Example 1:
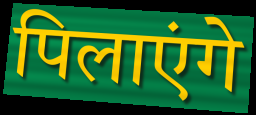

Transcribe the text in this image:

पिलाएंगे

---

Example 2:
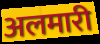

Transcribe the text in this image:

अलमारी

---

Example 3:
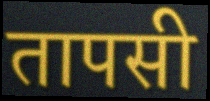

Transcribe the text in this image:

तापसी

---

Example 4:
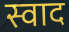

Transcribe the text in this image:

स्‍वाद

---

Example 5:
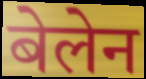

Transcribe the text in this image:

बेलेन